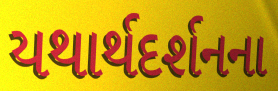
યથાર્થદર્શનના